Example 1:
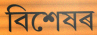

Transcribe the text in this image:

বিশেষৰ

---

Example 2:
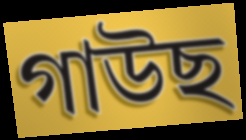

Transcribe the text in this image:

গাউছ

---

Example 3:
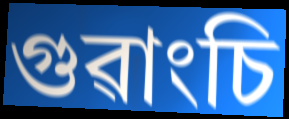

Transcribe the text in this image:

গুৱাংচি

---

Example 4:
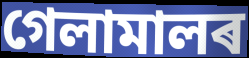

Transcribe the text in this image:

গেলামালৰ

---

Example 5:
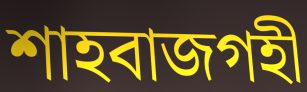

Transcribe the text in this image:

শাহবাজগহী